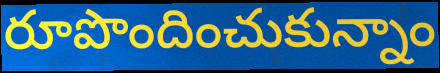
రూపొందించుకున్నాం